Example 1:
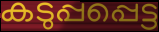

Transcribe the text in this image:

കടുപ്പപ്പെട്ട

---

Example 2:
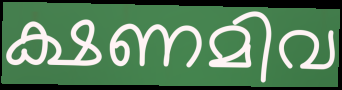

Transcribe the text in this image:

ക്ഷണമിവ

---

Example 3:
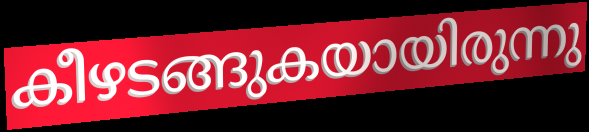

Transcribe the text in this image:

കീഴടങ്ങുകയായിരുന്നു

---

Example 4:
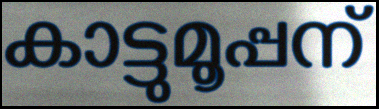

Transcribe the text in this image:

കാട്ടുമൂപ്പന്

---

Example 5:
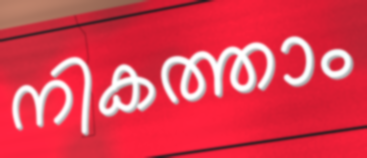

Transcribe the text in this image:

നികത്താം